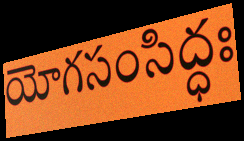
యోగసంసిద్ధః